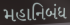
મહાનિબંધ